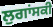
ਲੁਗਾਂਸਕੀ